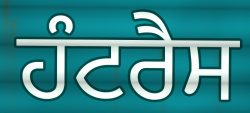
ਹੰਟਰੈਸ